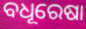
ବଧୂରେଷା